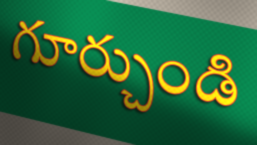
గూర్చుండి